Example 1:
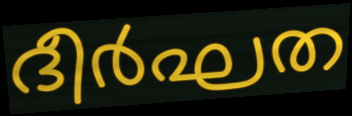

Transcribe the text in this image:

ദീർഘത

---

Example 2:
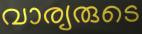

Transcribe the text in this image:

വാര്യരുടെ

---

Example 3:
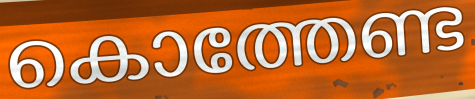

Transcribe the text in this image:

കൊത്തേണ്ട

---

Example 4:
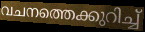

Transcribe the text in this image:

വചനത്തെക്കുറിച്ച്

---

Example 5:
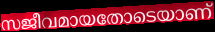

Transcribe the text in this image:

സജീവമായതോടെയാണ്